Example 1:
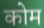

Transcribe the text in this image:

कोम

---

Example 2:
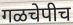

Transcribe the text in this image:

गळचेपीच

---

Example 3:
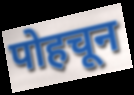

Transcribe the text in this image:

पोहचून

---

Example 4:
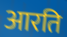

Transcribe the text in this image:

आरति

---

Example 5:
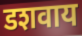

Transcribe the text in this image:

डशवाय